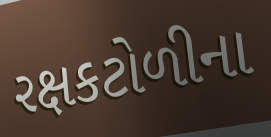
રક્ષકટોળીના